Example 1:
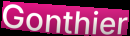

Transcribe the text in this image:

Gonthier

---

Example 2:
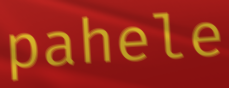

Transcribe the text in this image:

pahele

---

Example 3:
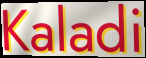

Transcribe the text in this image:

Kaladi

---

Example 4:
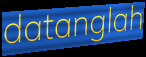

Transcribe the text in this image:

datanglah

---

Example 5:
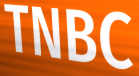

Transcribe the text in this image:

TNBC